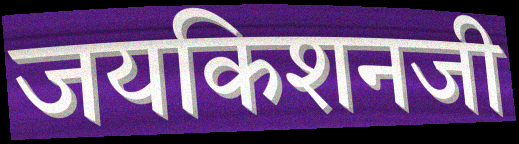
जयकिशनजी